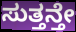
ಸುತ್ತನ್ತೇ